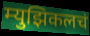
म्युझिकलचं